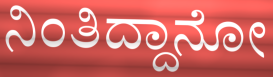
ನಿಂತಿದ್ದಾನೋ